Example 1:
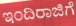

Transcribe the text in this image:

ಇಂದಿರಾಜಿಗೆ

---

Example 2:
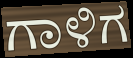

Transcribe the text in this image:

ಗಾಳಿಗ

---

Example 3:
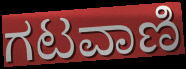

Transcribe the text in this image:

ಗಟವಾಣಿ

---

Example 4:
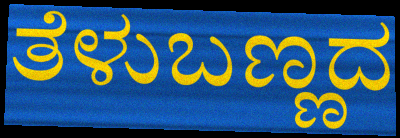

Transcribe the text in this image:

ತೆಳುಬಣ್ಣದ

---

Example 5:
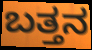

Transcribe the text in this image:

ಬತ್ತನ